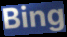
Bing